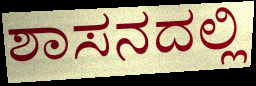
ಶಾಸನದಲ್ಲಿ